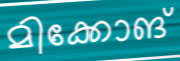
മിക്കോങ്